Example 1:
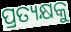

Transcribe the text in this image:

ପ୍ରତ୍ୟକ୍ଷକୁ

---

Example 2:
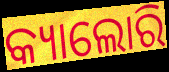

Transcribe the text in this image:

କ୍ୟାଲୋରି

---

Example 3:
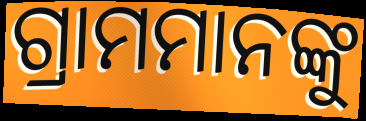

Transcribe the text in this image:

ଗ୍ରାମମାନଙ୍କୁ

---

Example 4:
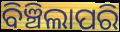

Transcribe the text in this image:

ବିଞ୍ଚିଲାପରି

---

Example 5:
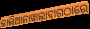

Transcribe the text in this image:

ଜାଲିଆନାୱାଲାବାଗଠାରେ